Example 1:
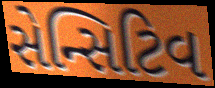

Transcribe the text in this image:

સેન્સિટિવ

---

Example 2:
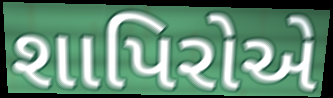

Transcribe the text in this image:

શાપિરોએ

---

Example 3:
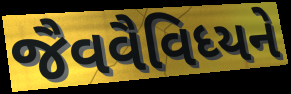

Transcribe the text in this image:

જૈવવૈવિધ્યને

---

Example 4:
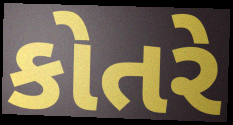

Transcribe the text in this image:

કોતરે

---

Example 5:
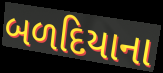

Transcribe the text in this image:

બળદિયાના